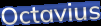
Octavius